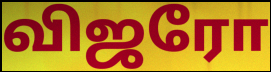
விஜரோ